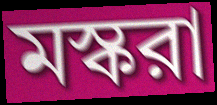
মস্করা